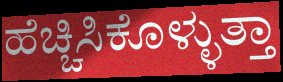
ಹೆಚ್ಚಿಸಿಕೊಳ್ಳುತ್ತಾ